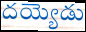
దయ్యెడు